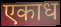
एकाध